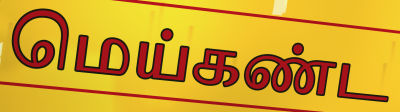
மெய்கண்ட